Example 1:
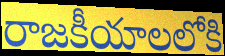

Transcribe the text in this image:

రాజకీయాలలోకి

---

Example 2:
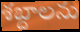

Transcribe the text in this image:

శబ్దాలను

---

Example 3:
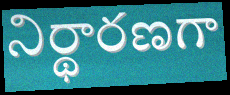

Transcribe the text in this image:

నిర్థారణగా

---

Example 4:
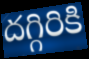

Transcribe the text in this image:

దగ్గిరికి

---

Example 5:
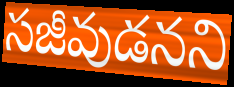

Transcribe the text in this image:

సజీవుడనని